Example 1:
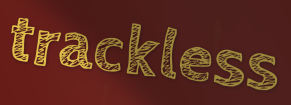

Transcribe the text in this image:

trackless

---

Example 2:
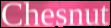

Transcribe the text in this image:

Chesnut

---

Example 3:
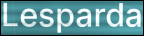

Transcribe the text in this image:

Lesparda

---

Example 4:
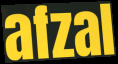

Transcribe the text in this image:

afzal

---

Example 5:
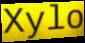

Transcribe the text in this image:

Xylo